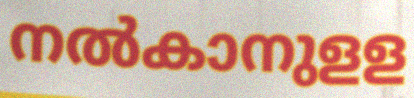
നൽകാനുളള